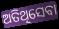
ଅତିଥିସେବା